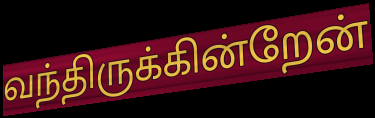
வந்திருக்கின்றேன்